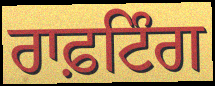
ਰਾਫ਼ਟਿੰਗ